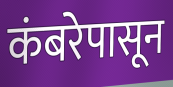
कंबरेपासून